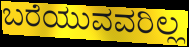
ಬರೆಯುವವರಿಲ್ಲ